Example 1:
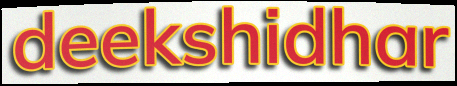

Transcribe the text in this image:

deekshidhar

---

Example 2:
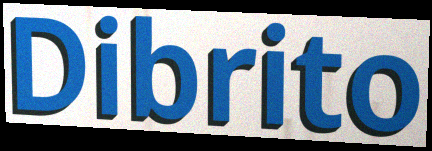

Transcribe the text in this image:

Dibrito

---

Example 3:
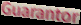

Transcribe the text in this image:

Guarantor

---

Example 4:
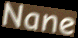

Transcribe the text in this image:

Nane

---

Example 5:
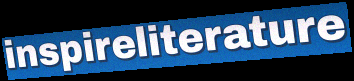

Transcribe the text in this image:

inspireliterature